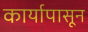
कार्यापासून